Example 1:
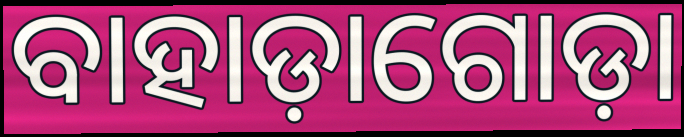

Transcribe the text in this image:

ବାହାଡ଼ାଗୋଡ଼ା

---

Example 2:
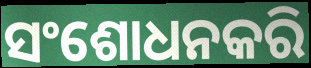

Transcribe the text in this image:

ସଂଶୋଧନକରି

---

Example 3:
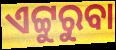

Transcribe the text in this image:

ଏଟ୍ଟୁରୁବା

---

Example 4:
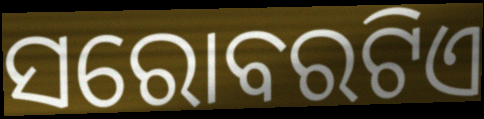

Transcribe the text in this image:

ସରୋବରଟିଏ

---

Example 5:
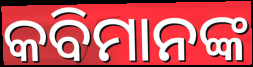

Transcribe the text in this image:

କବିମାନଙ୍କ